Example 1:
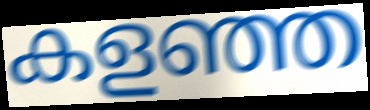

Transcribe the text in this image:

കളഞ്ഞ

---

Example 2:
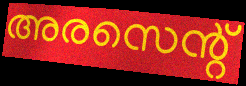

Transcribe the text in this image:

അരസെന്റ്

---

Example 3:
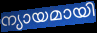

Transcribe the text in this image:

ന്യായമായി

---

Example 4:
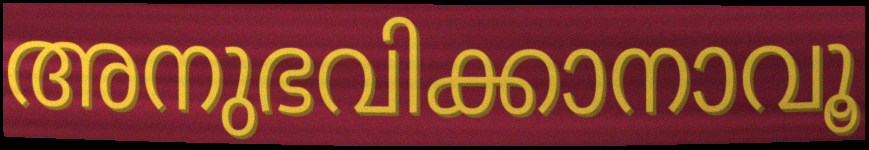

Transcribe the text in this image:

അനുഭവിക്കാനാവൂ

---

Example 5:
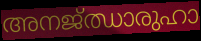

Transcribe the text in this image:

അനജ്ഝാരുഹാ